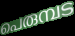
പെരുമ്പട